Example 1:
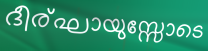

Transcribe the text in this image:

ദീര്ഘായുസ്സോടെ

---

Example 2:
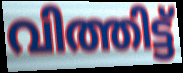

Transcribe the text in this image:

വിത്തിട്ട്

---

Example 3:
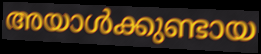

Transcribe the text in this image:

അയാൾക്കുണ്ടായ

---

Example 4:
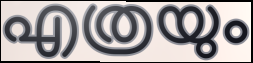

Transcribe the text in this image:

എത്രയും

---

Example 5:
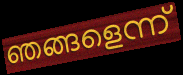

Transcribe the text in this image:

ഞങ്ങളെന്ന്